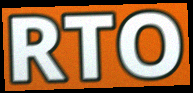
RTO